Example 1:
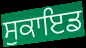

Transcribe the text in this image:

ਸੁਕਾਇਡ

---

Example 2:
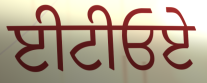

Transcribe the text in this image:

ਈਟੀਓਏ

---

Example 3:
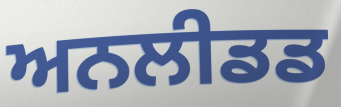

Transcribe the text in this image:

ਅਨਲੀਡਡ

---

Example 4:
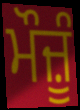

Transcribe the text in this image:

ਮੌਜ਼ੂੰ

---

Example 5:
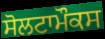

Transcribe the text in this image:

ਸੋਲਟਾਮੌਕਸ